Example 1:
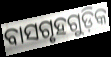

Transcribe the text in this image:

ବାସଗୃହଗୁଡ଼ିକ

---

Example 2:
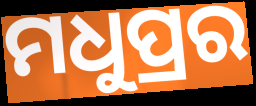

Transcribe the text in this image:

ମଧୁପ୍ରର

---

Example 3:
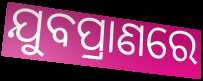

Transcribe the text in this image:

ଯୁବପ୍ରାଣରେ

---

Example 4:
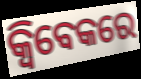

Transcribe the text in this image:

କ୍ୱିବେକରେ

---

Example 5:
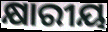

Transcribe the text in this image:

କ୍ଷାରୀୟ